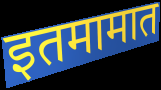
इतमामात